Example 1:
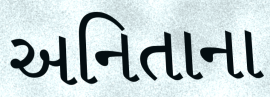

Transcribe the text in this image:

અનિતાના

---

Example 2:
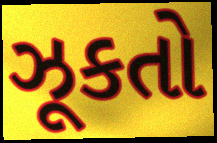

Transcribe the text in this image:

ઝૂકતો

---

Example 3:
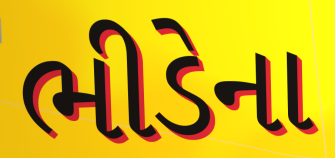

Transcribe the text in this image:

ભીડેના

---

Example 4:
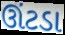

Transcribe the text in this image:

ઊંટડા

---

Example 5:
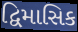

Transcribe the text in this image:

દ્વિમાસિક